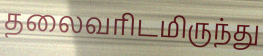
தலைவரிடமிருந்து